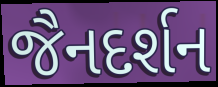
જૈનદર્શન